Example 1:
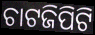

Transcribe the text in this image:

ଚାଟଜିପିଟି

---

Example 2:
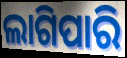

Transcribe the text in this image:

ଲାଗିପାରି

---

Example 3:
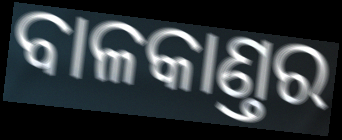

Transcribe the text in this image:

ବାଳକାଣ୍ତର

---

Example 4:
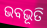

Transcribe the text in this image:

ଭବଭୂତି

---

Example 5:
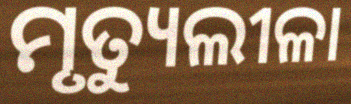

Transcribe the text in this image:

ମୃତ୍ୟୁଲୀଳା